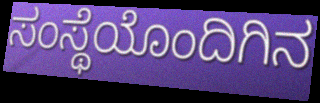
ಸಂಸ್ಥೆಯೊಂದಿಗಿನ